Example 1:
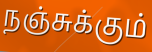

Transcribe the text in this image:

நஞ்சுக்கும்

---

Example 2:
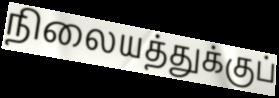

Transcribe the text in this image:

நிலையத்துக்குப்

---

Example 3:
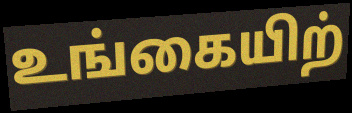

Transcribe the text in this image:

உங்கையிற்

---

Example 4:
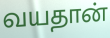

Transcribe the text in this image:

வயதான்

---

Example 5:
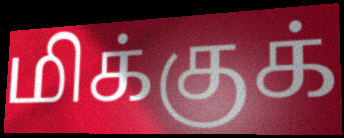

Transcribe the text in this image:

மிக்குக்